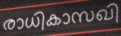
രാധികാസഖി